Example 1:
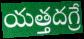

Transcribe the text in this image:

యత్తదగ్రే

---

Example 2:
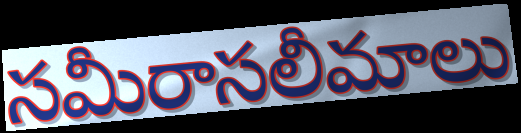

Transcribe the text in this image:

సమీరాసలీమాలు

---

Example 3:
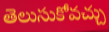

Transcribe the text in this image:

తెలుసుకోవచ్చు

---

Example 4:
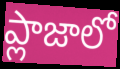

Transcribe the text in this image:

ప్లాజాలో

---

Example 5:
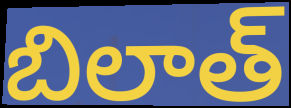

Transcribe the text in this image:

బిలాత్